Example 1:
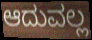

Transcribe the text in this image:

ಆದುವಲ್ಲ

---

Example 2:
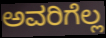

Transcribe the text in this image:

ಅವರಿಗೆಲ್ಲ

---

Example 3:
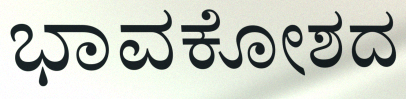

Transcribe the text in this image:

ಭಾವಕೋಶದ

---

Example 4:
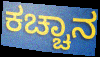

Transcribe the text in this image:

ಕಚ್ಚಾನ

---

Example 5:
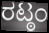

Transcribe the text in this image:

ರಟ್ಠಂ